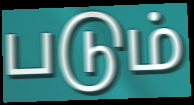
படும்